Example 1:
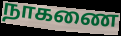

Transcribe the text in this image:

நாகணை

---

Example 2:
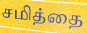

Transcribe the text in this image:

சமித்தை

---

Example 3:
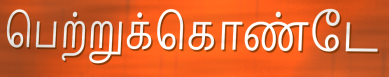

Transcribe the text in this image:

பெற்றுக்கொண்டே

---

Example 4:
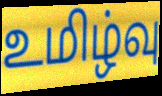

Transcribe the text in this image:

உமிழ்வு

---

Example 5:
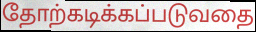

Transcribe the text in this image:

தோற்கடிக்கப்படுவதை